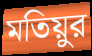
মতিয়ুর